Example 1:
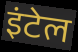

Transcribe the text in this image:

इंटेल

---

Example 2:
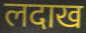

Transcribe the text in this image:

लदाख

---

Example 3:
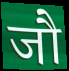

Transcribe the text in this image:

जौ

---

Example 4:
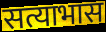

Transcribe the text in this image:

सत्याभास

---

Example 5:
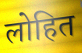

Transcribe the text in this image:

लोहित